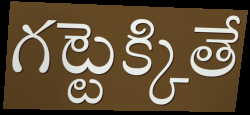
గట్టెక్కితే